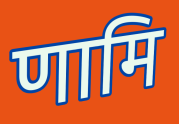
णामि